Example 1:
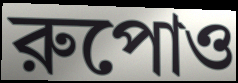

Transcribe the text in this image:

রুপোও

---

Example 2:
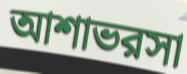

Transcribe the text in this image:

আশাভরসা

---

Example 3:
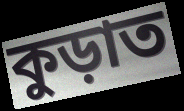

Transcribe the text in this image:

কুড়াত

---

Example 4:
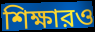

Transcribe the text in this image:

শিক্ষারও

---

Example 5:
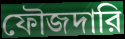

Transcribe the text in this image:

ফৌজদারি